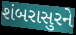
શંબરાસુરને